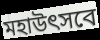
মহাউৎসবে